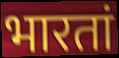
भारतां